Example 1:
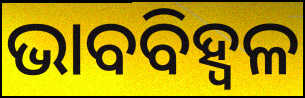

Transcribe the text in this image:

ଭାବବିହ୍ବଳ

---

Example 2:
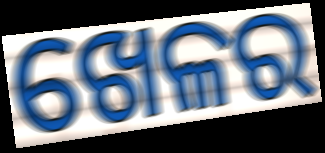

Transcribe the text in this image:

ଖେଳର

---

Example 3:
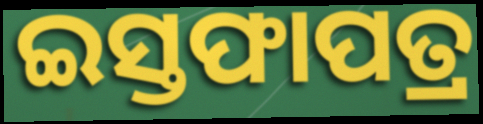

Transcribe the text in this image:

ଇସ୍ତଫାପତ୍ର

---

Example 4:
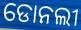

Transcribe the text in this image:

ଡୋନଲୀ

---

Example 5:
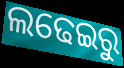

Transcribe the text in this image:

ଲଢେଇରୁ